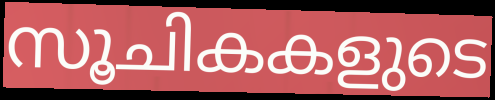
സൂചികകളുടെ